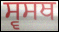
ਸ੍ਵਸਥ